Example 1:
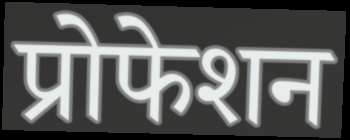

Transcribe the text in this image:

प्रोफेशन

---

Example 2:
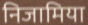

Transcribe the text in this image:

निजामिया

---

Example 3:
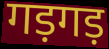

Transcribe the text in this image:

गड़गड़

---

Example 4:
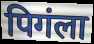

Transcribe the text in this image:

पिगंला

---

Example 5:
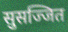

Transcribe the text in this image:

सुसज्जित